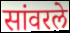
सांवरले